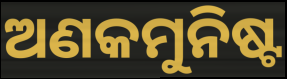
ଅଣକମୁନିଷ୍ଟ